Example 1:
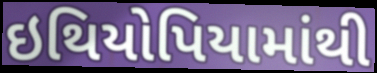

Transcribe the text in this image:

ઇથિયોપિયામાંથી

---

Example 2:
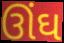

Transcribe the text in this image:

ઊંઘ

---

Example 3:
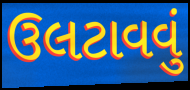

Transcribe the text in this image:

ઉલટાવવું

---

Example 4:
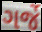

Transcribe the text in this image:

ગર્જે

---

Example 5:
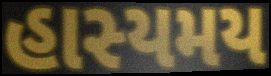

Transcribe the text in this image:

હાસ્યમય